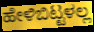
ಹೇಳಿಬಿಟ್ಟಳಲ್ಲ